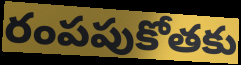
రంపపుకోతకు